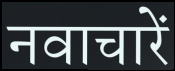
नवाचारें